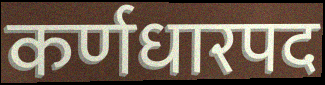
कर्णधारपद